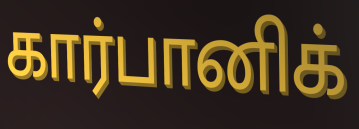
கார்பானிக்